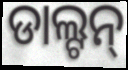
ଡାଲ୍ଟନ୍